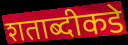
शताब्दीकडे